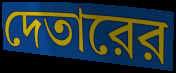
দেতারের